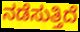
ನಡೆಸುತ್ತಿದೆ